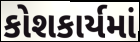
કોશકાર્યમાં